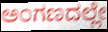
ಅಂಗಣದಲ್ಲೇ